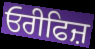
ਓਰੀਫਿਜ਼